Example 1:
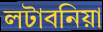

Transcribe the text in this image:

লটাবনিয়া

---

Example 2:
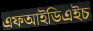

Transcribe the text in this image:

এফআইডিএইচ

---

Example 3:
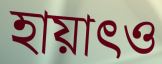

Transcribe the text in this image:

হায়াৎও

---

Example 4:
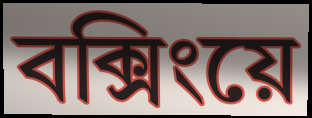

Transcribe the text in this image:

বক্সিংয়ে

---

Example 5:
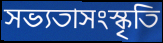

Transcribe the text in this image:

সভ্যতাসংস্কৃতি